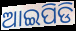
ଆଇପିଡି